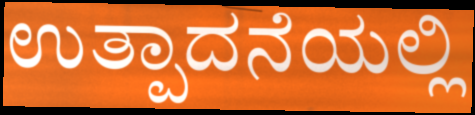
ಉತ್ಪಾದನೆಯಲ್ಲಿ